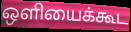
ஒளியைக்கூட